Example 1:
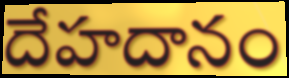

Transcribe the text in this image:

దేహదానం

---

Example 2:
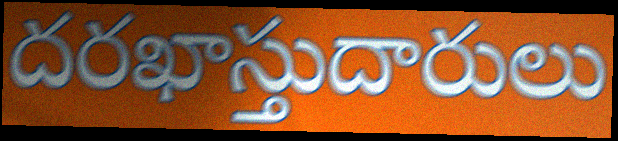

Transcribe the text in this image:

దరఖాస్తుదారులు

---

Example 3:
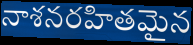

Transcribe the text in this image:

నాశనరహితమైన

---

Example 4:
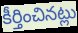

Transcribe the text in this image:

కీర్తించినట్లు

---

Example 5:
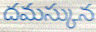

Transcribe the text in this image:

దమస్కున